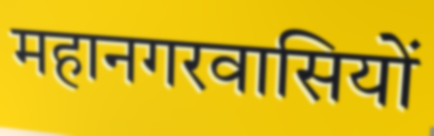
महानगरवासियों